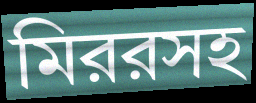
মিররসহ